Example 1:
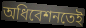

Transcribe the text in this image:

অধিবেশনতেই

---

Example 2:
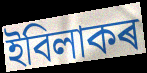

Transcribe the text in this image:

ইবিলাকৰ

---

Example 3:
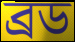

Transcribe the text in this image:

ব্ৰড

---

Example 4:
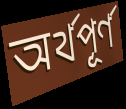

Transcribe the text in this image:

অৰ্থপূৰ্ণ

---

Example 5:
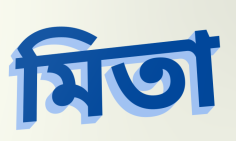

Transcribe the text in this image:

মিতা